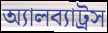
অ্যালব্যাট্রস